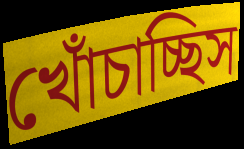
খোঁচাচ্ছিস